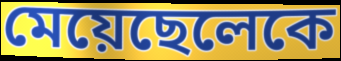
মেয়েছেলেকে